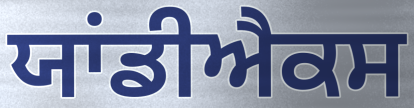
ਯਾਂਡੀਐਕਸ